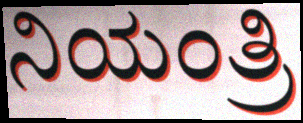
ನಿಯಂತ್ರಿ